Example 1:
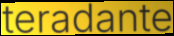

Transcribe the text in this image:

teradante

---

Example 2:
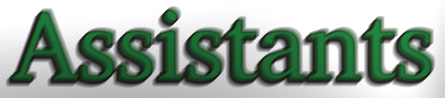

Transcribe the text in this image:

Assistants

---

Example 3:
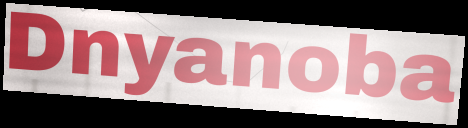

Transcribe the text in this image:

Dnyanoba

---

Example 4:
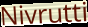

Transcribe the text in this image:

Nivrutti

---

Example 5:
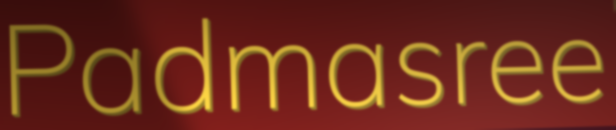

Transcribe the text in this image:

Padmasree